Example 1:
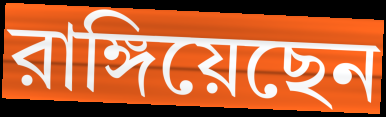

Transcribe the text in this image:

রাঙ্গিয়েছেন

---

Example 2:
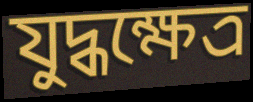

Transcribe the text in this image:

যুদ্ধক্ষেত্র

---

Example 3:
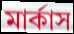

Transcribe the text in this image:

মার্কাস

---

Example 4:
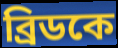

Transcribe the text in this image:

ব্রিডকে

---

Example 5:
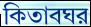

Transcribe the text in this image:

কিতাবঘর